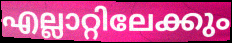
എല്ലാറ്റിലേക്കും